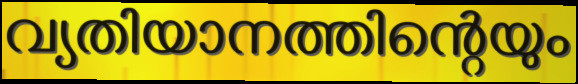
വ്യതിയാനത്തിന്റെയും